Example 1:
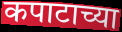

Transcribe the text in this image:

कपाटाच्या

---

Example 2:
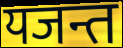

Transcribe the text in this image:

यजन्त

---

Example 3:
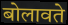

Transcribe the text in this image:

बोलावते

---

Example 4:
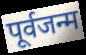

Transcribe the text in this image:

पूर्वजन्म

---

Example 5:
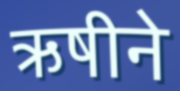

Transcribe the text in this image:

ऋषीने